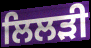
ਲਿਲੜੀ